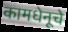
कामधेनूचे